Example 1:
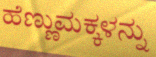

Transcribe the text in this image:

ಹೆಣ್ಣುಮಕ್ಕಳನ್ನು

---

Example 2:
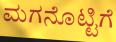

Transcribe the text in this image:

ಮಗನೊಟ್ಟಿಗೆ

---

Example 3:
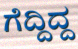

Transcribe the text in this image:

ಗೆದ್ದಿದ್ದ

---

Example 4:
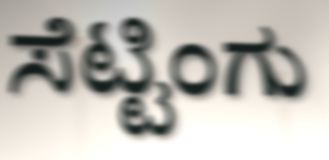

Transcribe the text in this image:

ಸೆಟ್ಟಿಂಗು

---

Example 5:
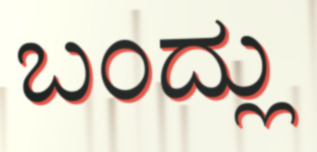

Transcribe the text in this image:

ಬಂದ್ಲು